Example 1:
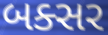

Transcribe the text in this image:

બક્સર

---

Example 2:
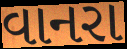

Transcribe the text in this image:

વાનરા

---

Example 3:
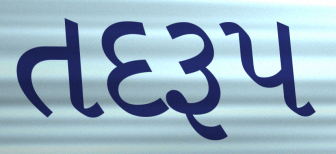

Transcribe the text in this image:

તદરૂપ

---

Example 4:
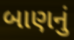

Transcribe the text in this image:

બાણનું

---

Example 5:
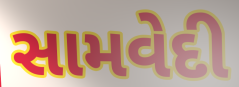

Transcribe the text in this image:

સામવેદી